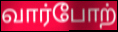
வார்போற்